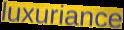
luxuriance